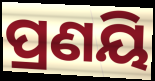
ପ୍ରଣୟି